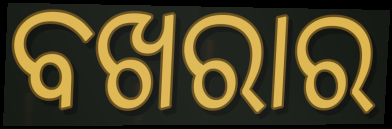
ବଖରାର